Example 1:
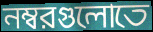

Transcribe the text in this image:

নম্বরগুলোতে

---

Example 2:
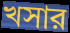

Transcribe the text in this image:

খসার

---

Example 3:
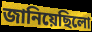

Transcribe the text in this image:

জানিয়েছিলো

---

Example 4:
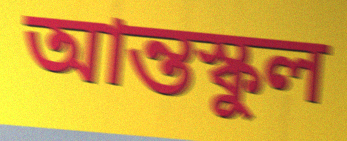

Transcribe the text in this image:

আন্তস্কুল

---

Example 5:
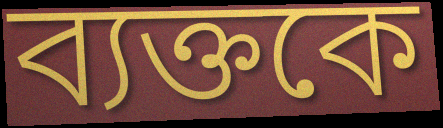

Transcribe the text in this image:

ব্যক্তকে